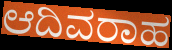
ಆದಿವರಾಹ